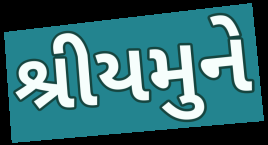
શ્રીયમુને